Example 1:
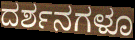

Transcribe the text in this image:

ದರ್ಶನಗಳೂ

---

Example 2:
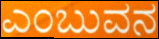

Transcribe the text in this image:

ಎಂಬುವನ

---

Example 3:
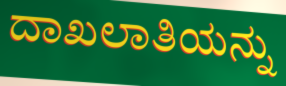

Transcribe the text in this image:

ದಾಖಲಾತಿಯನ್ನು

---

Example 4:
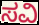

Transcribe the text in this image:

ಸವಿ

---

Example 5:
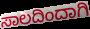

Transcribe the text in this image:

ಸಾಲದಿಂದಾಗಿ